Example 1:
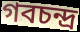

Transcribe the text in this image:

গবচন্দ্র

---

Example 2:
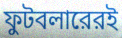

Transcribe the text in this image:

ফুটবলারেরই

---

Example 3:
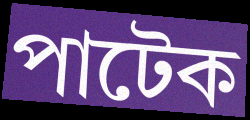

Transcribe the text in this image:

পাটেক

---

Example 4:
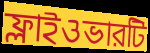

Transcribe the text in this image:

ফ্লাইওভারটি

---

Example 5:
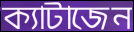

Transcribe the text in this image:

ক্যাটাজেন